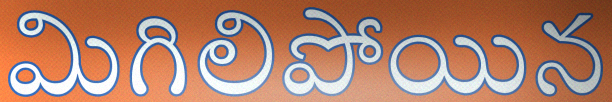
మిగిలిపోయిన